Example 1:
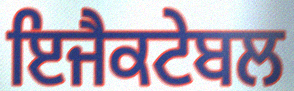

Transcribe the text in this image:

ਇਜੈਕਟੇਬਲ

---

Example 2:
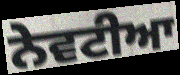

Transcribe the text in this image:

ਨੇਵਟੀਆ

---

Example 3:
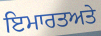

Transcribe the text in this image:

ਇਮਾਰਤਅਤੇ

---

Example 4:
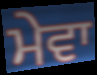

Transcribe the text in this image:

ਮੇਵਾ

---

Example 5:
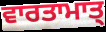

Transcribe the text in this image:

ਵਾਰਤਾਮਾਤ੍